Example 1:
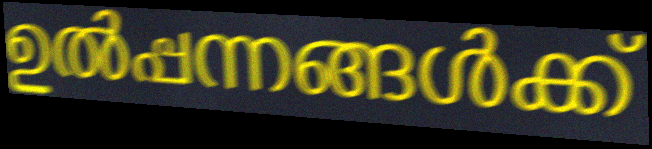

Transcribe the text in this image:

ഉൽപ്പന്നങ്ങൾക്ക്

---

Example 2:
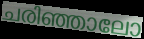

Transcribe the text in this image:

ചരിഞ്ഞാലോ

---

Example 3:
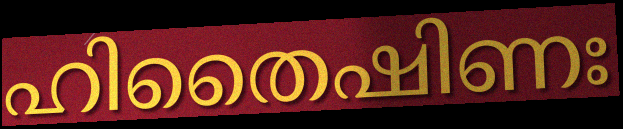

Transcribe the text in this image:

ഹിതൈഷിണഃ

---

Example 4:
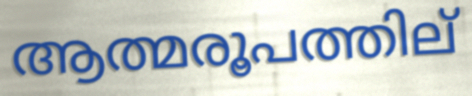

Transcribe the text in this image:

ആത്മരൂപത്തില്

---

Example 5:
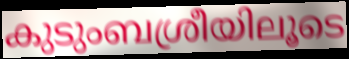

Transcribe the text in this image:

കുടുംബശ്രീയിലൂടെ